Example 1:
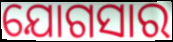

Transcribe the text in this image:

ଯୋଗସାର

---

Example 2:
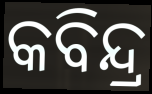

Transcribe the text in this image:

କବିନ୍ଦ୍ର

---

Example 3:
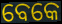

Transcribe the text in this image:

ବେକେ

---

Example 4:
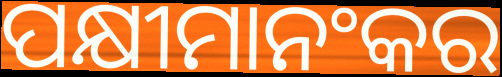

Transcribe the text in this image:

ପକ୍ଷୀମାନଂକର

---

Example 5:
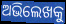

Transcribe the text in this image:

ଅଭିଲେଖକୁ